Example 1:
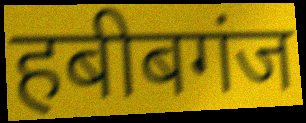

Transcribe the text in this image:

हबीबगंज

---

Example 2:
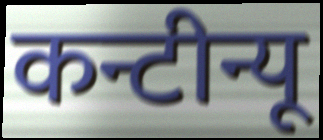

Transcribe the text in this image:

कन्टीन्यू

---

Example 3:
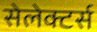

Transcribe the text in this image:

सेलेक्टर्स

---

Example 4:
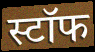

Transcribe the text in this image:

स्‍टॉफ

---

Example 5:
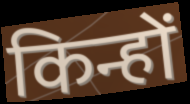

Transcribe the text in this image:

किन्हों